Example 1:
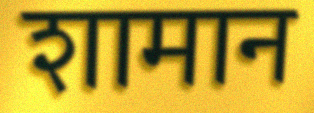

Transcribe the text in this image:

शामान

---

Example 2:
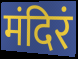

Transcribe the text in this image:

मंदिरं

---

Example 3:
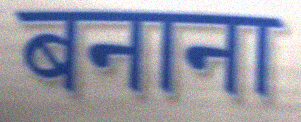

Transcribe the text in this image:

बनाना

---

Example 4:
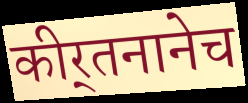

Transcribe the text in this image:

कीर्तनानेच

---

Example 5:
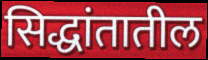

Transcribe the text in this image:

सिद्धांतातील